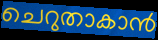
ചെറുതാകാൻ